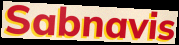
Sabnavis